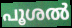
പൂശൽ